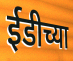
ईडीच्या